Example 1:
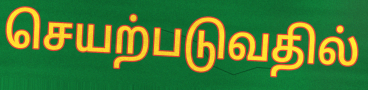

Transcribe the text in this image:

செயற்படுவதில்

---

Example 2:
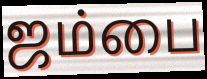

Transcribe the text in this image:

ஜம்பை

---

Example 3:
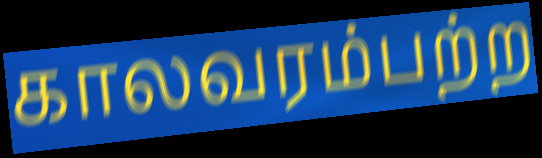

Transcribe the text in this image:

காலவரம்பற்ற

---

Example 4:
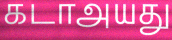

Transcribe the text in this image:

கடாஅயது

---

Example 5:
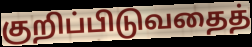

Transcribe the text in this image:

குறிப்பிடுவதைத்